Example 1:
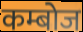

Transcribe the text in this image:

कम्बोज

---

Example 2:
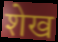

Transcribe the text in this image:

शेख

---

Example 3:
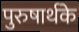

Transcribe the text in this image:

पुरुषार्थके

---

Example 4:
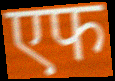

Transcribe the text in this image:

एफ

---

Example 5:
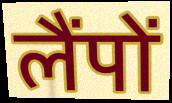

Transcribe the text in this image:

लैंपों